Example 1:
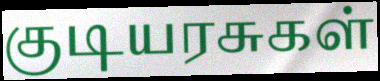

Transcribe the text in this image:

குடியரசுகள்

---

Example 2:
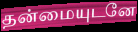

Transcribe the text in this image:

தன்மையுடனே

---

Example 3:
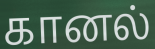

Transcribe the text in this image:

கானல்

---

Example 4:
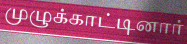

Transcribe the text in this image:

முழுக்காட்டினார்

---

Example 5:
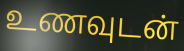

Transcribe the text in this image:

உணவுடன்